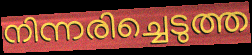
നിന്നരിച്ചെടുത്ത